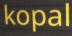
kopal